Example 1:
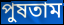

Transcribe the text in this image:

পুষতাম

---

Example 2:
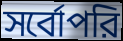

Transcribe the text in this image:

সর্বোপরি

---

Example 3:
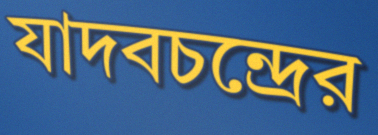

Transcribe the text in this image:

যাদবচন্দ্রের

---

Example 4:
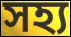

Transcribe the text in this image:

সহ্য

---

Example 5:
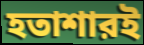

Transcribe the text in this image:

হতাশারই